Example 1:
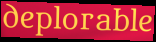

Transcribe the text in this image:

deplorable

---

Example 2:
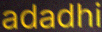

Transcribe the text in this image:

adadhi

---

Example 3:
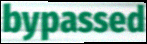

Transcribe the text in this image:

bypassed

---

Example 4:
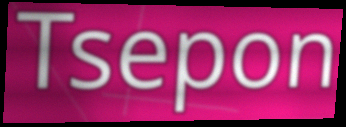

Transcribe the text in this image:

Tsepon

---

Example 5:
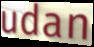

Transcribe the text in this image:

udan